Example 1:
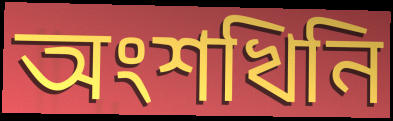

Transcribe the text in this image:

অংশখিনি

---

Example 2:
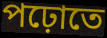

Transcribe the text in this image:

পঢ়োতে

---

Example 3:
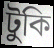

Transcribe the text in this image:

টুকি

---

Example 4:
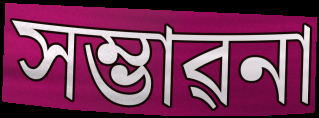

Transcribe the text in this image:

সম্ভাৱনা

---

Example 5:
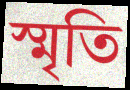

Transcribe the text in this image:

স্মৃতি